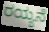
ರಯ್ಯನೆ